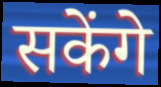
सकेंगे